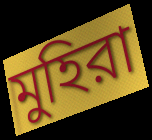
মুহিরা